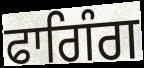
ਫਾਗਿੰਗ